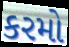
કરમો